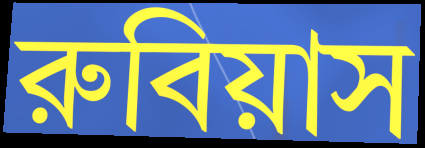
রুবিয়াস